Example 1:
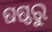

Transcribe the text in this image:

ଷଷ୍ଠରୁ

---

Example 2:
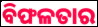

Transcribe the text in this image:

ବିଫଳତାର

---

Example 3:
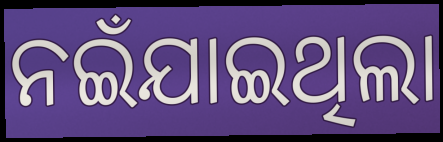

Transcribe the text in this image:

ନଇଁଯାଇଥିଲା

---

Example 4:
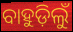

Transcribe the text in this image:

ବାହୁଡ଼ିଲୁଁ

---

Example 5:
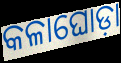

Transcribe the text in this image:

କଳାଘୋଡ଼ା